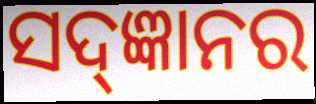
ସଦ୍‌ଜ୍ଞାନର